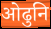
ओढुनि